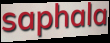
saphala